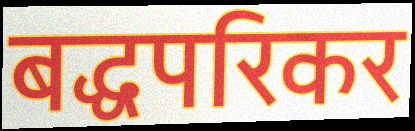
बद्धपरिकर